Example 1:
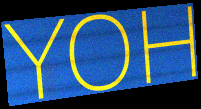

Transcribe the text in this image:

YOH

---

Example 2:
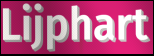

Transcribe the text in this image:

Lijphart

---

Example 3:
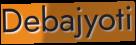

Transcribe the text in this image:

Debajyoti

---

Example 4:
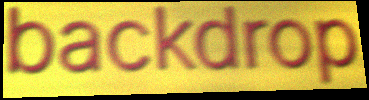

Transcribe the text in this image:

backdrop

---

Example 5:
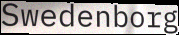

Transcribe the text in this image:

Swedenborg